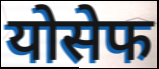
योसेफ